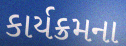
કાર્યક્રમના